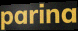
parina